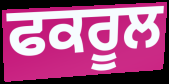
ਫਕਰੂਲ